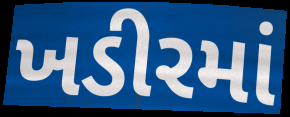
ખડીરમાં